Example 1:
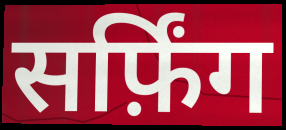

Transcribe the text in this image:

सर्फ़िंग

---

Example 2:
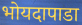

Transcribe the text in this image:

भोयदापाडा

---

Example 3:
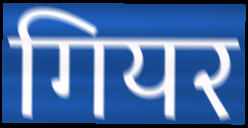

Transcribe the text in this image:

गियर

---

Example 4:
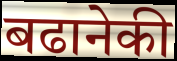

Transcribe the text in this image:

बढानेकी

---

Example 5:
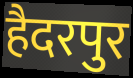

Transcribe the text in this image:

हैदरपुर